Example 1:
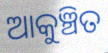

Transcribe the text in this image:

ଆକୁଞ୍ଚିତ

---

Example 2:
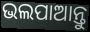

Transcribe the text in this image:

ଭଲପାଆନ୍ତୁ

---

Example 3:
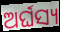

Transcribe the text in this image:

ଅର୍ଘସ୍ୟ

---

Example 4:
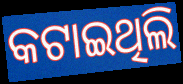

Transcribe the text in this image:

କଟାଇଥିଲି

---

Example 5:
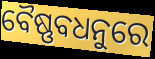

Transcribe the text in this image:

ବୈଷ୍ଣବଧନୁରେ